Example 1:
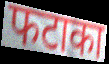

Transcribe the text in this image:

फटाका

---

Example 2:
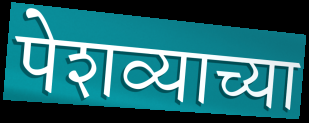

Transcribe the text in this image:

पेशव्याच्या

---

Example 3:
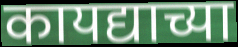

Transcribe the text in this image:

कायद्याच्या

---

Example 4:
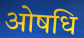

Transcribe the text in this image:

ओषधि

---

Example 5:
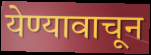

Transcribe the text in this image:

येण्यावाचून